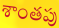
శాంతపు